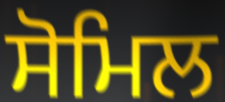
ਸੋਮਿਲ